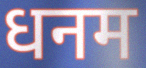
धनम